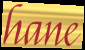
hane